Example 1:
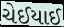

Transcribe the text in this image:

ચેઈયાઈ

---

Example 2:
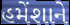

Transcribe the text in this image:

હમેંશાને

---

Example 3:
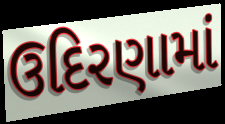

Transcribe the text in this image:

ઉદિરણામાં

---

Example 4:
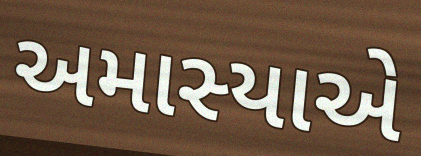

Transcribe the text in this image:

અમાસ્યાએ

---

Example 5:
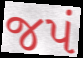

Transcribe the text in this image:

જપં